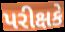
પરીક્ષકે